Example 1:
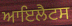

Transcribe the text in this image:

ਆਇਲੈਟਸ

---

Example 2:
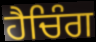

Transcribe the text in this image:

ਹੈਚਿੰਗ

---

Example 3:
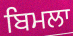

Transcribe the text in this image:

ਬਿਮਲਾ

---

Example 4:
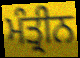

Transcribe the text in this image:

ਮੰਤ੍ਰੀਨ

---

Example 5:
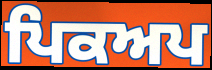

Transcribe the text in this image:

ਪਿਕਅਪ